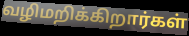
வழிமறிக்கிறார்கள்